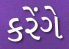
કરેંગે